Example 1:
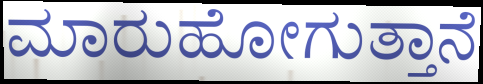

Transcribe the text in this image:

ಮಾರುಹೋಗುತ್ತಾನೆ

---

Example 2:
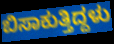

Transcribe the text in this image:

ಬಿಸಾಕುತ್ತಿದ್ದಳು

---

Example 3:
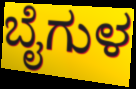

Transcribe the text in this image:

ಬೈಗುಳ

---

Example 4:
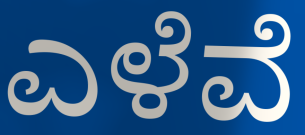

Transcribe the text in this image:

ಎಳೆವೆ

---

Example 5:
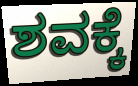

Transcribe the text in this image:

ಶವಕ್ಕೆ